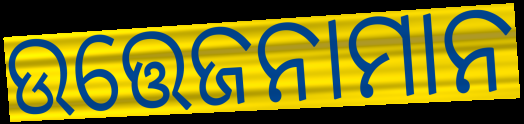
ଉତ୍ତେଜନାମାନ